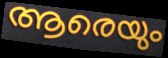
ആരെയും